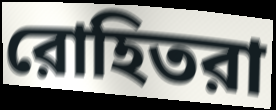
রোহিতরা